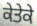
ਕੇਤੇਕੇ